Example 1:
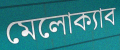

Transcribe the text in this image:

মেলোক্যাব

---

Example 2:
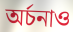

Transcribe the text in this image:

অর্চনাও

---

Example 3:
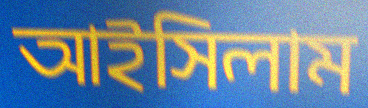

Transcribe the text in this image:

আইসিলাম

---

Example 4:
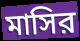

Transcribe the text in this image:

মাসির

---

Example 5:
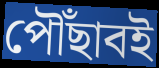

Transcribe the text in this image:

পৌঁছাবই